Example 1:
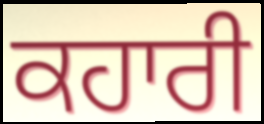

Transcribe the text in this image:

ਕਹਾਰੀ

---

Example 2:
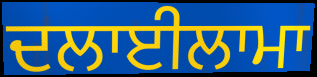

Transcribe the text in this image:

ਦਲਾਈਲਾਮਾ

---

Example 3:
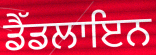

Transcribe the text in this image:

ਡੈੱਡਲਾਇਨ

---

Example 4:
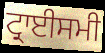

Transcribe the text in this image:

ਟ੍ਰਾਈਸਮੀ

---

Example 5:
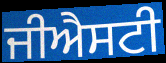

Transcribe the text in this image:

ਜੀਐਸਟੀ